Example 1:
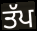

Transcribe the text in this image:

ਤੱਪ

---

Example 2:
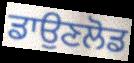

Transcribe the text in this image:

ਡਾਉਣਲੋਡ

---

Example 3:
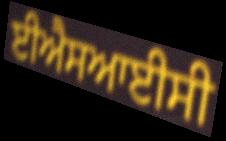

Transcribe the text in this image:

ਈਐਸਆਈਸੀ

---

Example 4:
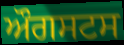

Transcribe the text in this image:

ਔਗਸਟਸ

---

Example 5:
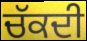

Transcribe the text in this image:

ਚੱਕਦੀ